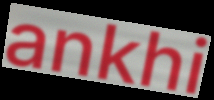
ankhi